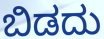
ಬಿಡದು